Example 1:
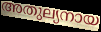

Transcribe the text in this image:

അതുല്യനായ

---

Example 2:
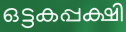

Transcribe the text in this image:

ഒട്ടകപ്പക്ഷി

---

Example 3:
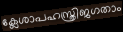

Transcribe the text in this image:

ക്ലേശാപഹസ്ത്രിജഗതാം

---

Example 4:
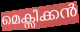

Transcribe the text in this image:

മെക്സിക്കൻ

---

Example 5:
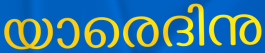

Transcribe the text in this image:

യാരെദിനു